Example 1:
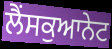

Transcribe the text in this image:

ਲੈਂਸਕੁਆਨੇਟ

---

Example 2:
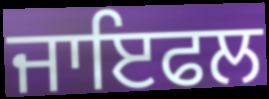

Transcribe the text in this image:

ਜਾਇਫਲ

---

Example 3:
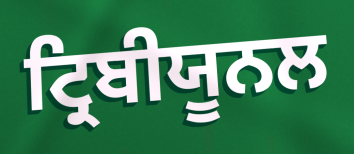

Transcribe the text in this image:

ਟ੍ਰਿਬੀਯੂਨਲ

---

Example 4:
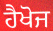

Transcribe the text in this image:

ਹੈਖੋਜ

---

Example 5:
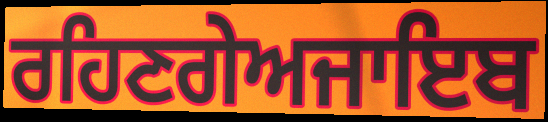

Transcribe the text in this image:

ਰਹਿਣਗੇਅਜਾਇਬ